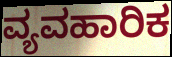
ವ್ಯವಹಾರಿಕ